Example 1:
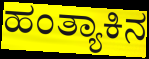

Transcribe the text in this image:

ಹಂತ್ಯಾಕಿನ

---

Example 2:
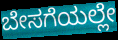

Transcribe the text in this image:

ಬೇಸಗೆಯಲ್ಲೇ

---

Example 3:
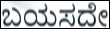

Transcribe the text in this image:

ಬಯಸದೇ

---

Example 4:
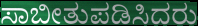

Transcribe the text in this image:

ಸಾಬೀತುಪಡಿಸಿದರು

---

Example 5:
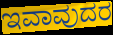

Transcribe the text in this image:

ಇವಾವುದರ